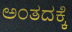
ಅಂತದಕ್ಕೆ